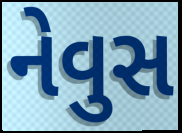
નેવુસ